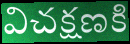
విచక్షణకి